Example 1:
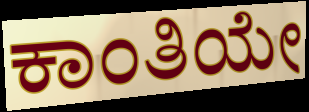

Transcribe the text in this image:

ಕಾಂತಿಯೇ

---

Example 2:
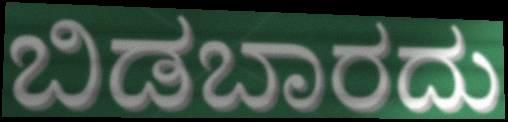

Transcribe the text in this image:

ಬಿಡಬಾರದು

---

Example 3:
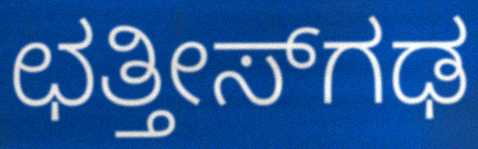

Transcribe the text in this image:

ಛತ್ತೀಸ್‍ಗಢ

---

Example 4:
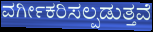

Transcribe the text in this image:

ವರ್ಗೀಕರಿಸಲ್ಪಡುತ್ತವೆ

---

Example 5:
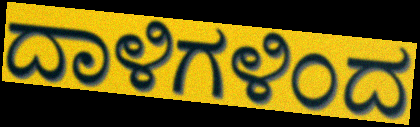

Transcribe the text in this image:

ದಾಳಿಗಳಿಂದ